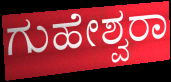
ಗುಹೇಶ್ವರಾ